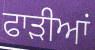
ਫਾੜੀਆਂ